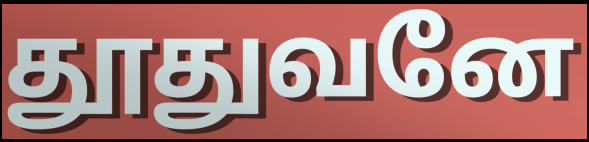
தூதுவனே